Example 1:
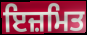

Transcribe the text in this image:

ਇਜ਼ਮਿਤ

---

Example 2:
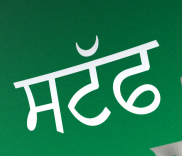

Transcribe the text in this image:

ਸਟੱਫ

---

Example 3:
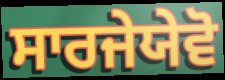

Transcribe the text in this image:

ਸਾਰਜੇਯੇਵੋ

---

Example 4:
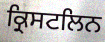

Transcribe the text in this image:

ਕ੍ਰਿਸਟਲਿਨ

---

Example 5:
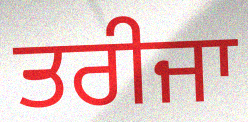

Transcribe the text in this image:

ਤਰੀਜਾ